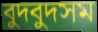
বুদবুদসম